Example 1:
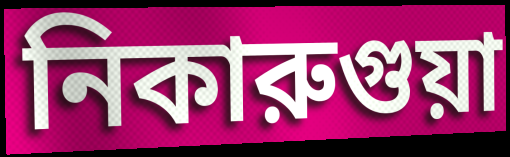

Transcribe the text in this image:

নিকারুগুয়া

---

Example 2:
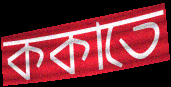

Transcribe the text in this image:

ককাতে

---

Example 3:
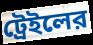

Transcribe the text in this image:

ট্রেইলের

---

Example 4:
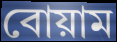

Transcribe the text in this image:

বোয়াম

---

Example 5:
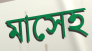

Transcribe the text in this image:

মাসেহ